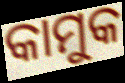
କାମୁକ